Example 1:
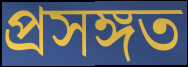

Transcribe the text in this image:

প্রসঙ্গত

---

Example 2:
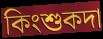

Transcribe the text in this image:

কিংশুকদা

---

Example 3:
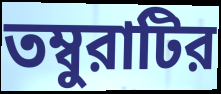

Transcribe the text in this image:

তম্বুরাটির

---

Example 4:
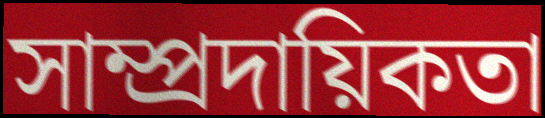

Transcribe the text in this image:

সাম্প্রদায়িকতা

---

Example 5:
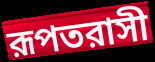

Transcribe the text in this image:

রূপতরাসী